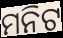
ମନିଟ